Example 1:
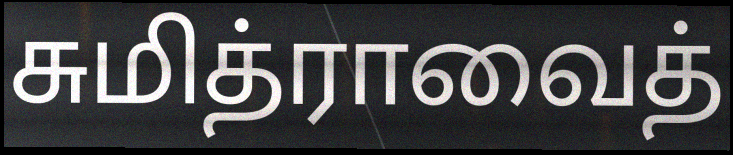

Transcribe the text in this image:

சுமித்ராவைத்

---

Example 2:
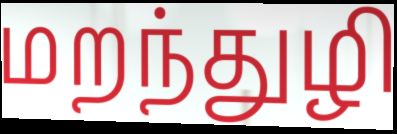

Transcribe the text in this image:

மறந்துழி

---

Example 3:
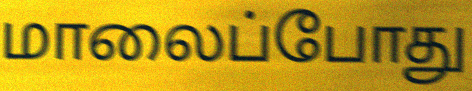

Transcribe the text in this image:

மாலைப்போது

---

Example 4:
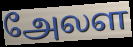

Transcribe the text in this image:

அேலள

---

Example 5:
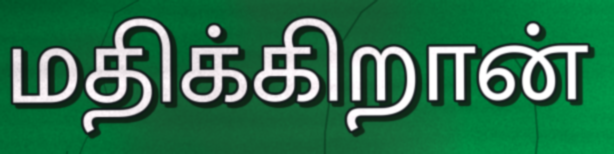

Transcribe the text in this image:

மதிக்கிறான்